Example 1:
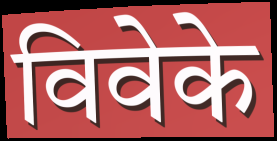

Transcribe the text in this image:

विवेके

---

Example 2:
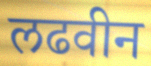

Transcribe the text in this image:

लढवीन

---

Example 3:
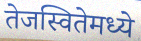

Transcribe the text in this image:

तेजस्वितेमध्ये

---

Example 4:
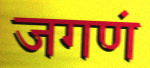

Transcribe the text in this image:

जगणं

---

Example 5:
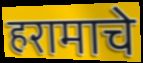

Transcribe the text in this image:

हरामाचे